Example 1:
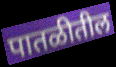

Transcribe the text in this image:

पातळीतील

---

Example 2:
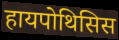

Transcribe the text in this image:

हायपोथिसिस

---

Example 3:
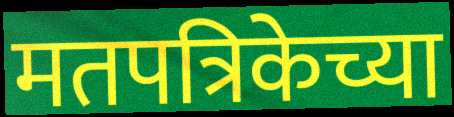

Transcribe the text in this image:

मतपत्रिकेच्या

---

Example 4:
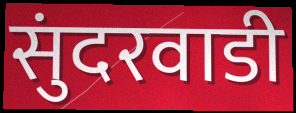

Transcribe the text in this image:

सुंदरवाडी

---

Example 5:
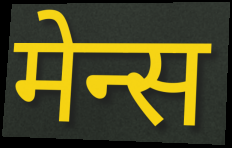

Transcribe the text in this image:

मेन्स